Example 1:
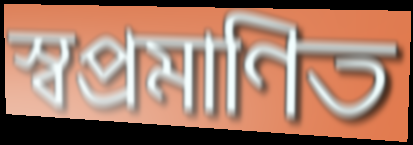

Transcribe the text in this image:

স্বপ্রমাণিত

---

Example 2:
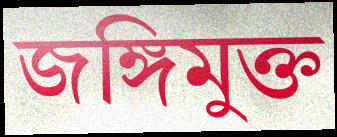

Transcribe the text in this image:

জঙ্গিমুক্ত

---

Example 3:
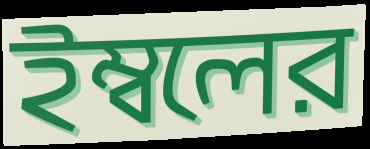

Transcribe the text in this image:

ইম্বলের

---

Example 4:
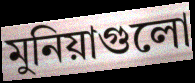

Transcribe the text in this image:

মুনিয়াগুলো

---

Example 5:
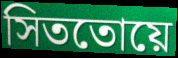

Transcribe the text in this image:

সিততোয়ে